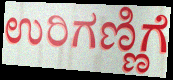
ಉರಿಗಣ್ಣಿಗೆ